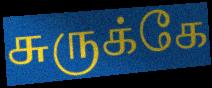
சுருக்கே